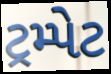
ટ્રમ્પેટ